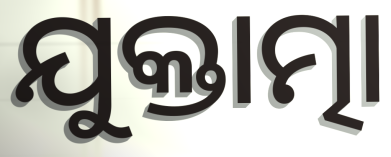
ଯୁକ୍ତାତ୍ମା